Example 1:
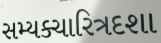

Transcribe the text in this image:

સમ્યક્ચારિત્રદશા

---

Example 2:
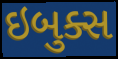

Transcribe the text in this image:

ઇબુક્સ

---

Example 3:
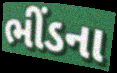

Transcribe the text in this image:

ભીંડના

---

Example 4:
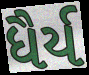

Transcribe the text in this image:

ધૈર્ય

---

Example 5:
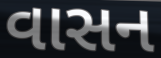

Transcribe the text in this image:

વાસન